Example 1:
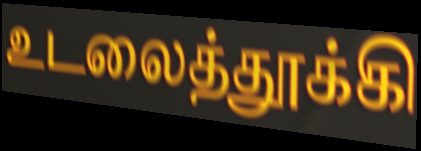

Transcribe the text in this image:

உடலைத்தூக்கி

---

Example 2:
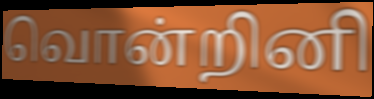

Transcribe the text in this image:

வொன்றினி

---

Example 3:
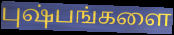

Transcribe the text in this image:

புஷ்பங்களை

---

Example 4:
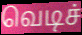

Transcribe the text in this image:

வெடிச்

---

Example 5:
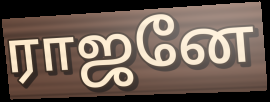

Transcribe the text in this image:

ராஜனே